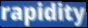
rapidity